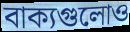
বাক্যগুলোও